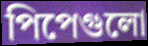
পিপেগুলো